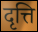
दृत्ति